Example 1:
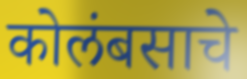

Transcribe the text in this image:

कोलंबसाचे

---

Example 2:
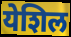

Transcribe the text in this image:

येशिल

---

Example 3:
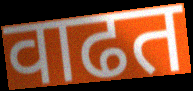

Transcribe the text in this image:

वाढत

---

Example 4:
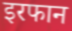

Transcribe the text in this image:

इरफान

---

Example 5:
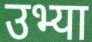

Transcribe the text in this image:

उभ्या